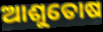
ଆଶୁତୋଷ